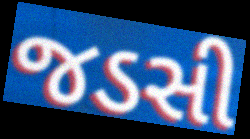
જડસી